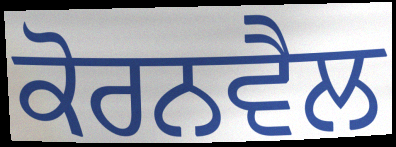
ਕੋਰਨਵੈਲ